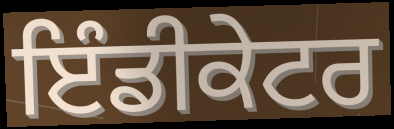
ਇੰਡੀਕੇਟਰ